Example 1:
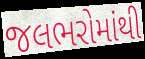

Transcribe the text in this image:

જલભરોમાંથી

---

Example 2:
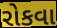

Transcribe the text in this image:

રોકવા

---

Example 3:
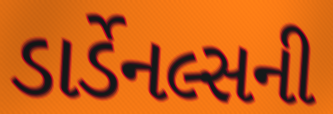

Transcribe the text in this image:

ડાર્ડેનલ્સની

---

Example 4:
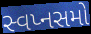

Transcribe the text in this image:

સ્વપ્નસમો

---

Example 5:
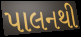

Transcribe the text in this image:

પાલનથી